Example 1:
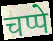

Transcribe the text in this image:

चप्पे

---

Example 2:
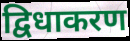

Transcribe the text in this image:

द्विधाकरण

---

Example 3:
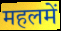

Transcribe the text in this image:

महलमें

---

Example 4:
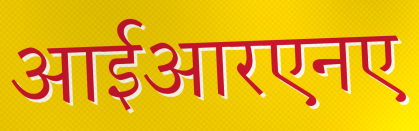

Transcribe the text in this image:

आईआरएनए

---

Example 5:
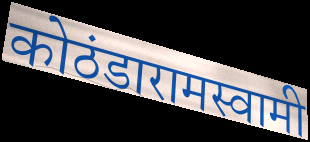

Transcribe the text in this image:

कोठंडारामस्वामी